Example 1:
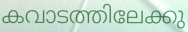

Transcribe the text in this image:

കവാടത്തിലേക്കു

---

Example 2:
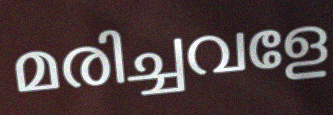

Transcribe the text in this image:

മരിച്ചവളേ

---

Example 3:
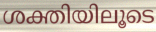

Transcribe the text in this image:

ശക്തിയിലൂടെ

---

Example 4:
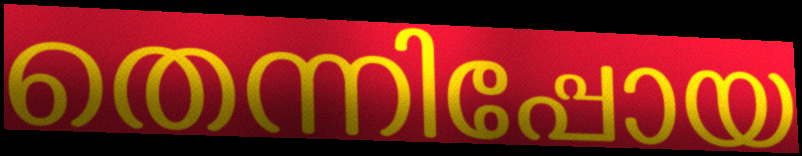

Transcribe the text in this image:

തെന്നിപ്പോയ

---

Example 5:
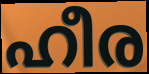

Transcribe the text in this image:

ഹീര